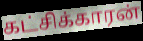
கட்சிக்காரன்